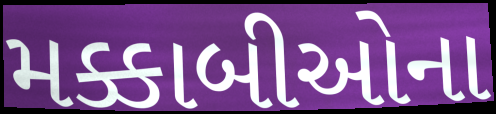
મક્કાબીઓના